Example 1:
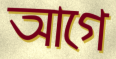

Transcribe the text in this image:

আগে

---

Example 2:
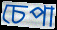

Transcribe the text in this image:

চেপা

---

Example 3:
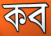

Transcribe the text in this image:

কব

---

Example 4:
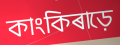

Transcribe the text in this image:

কাংকিৰাড়ে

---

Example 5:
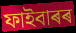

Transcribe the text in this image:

ফাইবাৰৰ